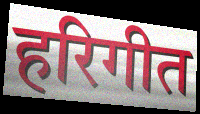
हरिगीत